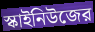
স্কাইনিউজের